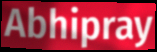
Abhipray